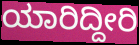
ಯಾರಿದ್ದೀರಿ